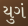
યુગં